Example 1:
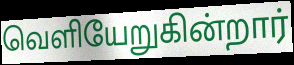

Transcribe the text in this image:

வெளியேறுகின்றார்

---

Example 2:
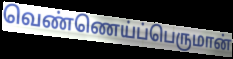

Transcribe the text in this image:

வெண்ணெய்ப்பெருமான்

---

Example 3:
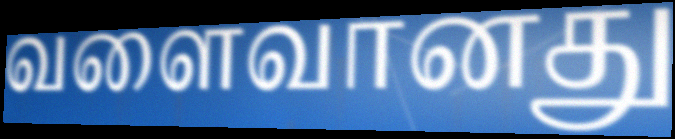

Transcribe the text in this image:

வளைவானது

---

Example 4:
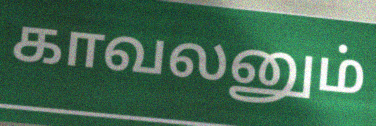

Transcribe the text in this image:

காவலனும்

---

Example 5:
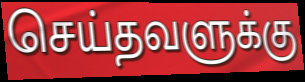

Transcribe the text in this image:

செய்தவளுக்கு